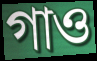
গাও